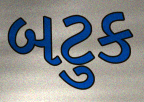
બટુક